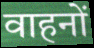
वाहनों